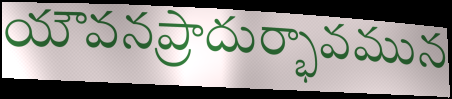
యౌవనప్రాదుర్భావమున